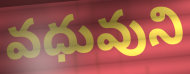
వధువుని